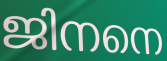
ജിനനെ